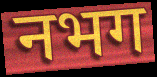
नभग